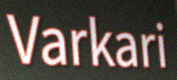
Varkari